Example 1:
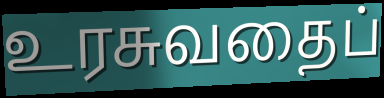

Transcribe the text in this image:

உரசுவதைப்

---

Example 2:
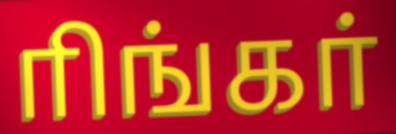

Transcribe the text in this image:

ரிங்கர்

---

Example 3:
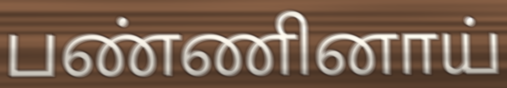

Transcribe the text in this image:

பண்ணினாய்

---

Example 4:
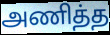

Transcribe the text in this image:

அணித்த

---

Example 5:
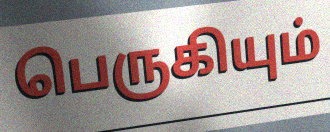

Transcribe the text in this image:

பெருகியும்